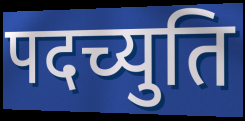
पदच्युति